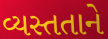
વ્યસ્તતાને